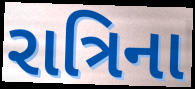
રાત્રિના